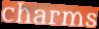
charms